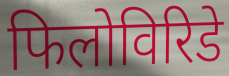
फिलोविरिडे